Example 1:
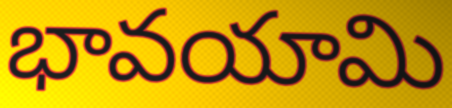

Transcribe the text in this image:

భావయామి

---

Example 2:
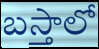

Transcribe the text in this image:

బస్తాలో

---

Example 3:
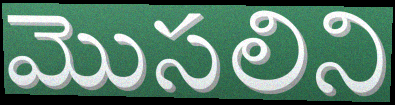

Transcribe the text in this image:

మొసలిని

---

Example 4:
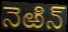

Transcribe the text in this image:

నెఱిన్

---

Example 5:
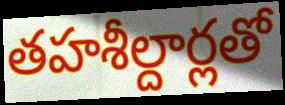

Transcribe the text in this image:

తహశీల్దార్లతో